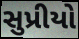
સુપ્રીયો